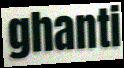
ghanti